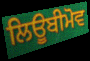
ਲਿਊਬੀਮੋਵ